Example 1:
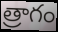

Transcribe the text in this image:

త్రాగం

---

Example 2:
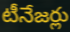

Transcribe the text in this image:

టీనేజర్లు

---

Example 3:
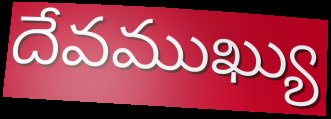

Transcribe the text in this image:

దేవముఖ్యు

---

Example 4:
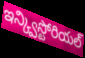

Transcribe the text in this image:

ఇన్క్విస్టోరియల్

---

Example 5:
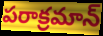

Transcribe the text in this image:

పరాక్రమాన్